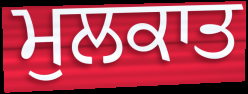
ਮੁਲਕਾਤ